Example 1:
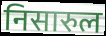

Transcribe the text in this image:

निसारुल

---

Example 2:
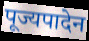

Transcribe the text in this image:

पूज्यपादेन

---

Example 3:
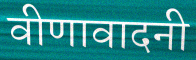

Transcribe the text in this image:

वीणावादनी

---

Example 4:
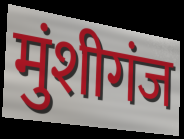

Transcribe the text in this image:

मुंशीगंज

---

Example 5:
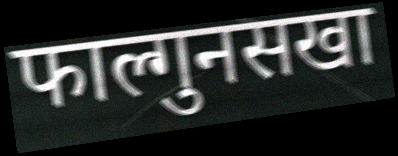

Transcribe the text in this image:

फाल्गुनसखा